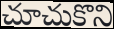
చూచుకొని